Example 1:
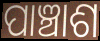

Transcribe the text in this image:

ପାଞ୍ଚାଶ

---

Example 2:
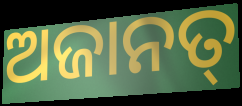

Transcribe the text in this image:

ଅଜାନତ୍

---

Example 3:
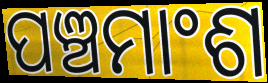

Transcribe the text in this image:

ପଞ୍ଚମାଂଶ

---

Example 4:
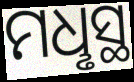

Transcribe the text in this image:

ମଧୢସ୍ଥ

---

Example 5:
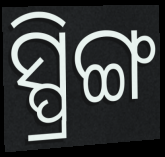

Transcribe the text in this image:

ସ୍ପ୍ରିଙ୍ଗ